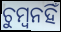
ଚୁମ୍ବନହିଁ